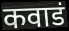
कवाडं